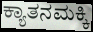
ಕ್ಯಾತನಮಕ್ಕಿ